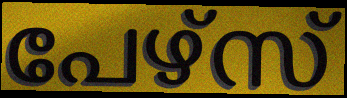
പേഴ്സ്